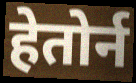
हेतोर्न